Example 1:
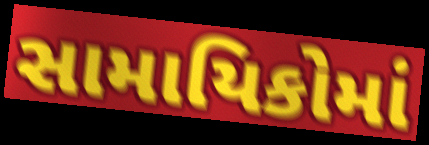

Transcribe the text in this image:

સામાયિકોમાં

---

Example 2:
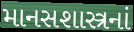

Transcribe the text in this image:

માનસશાસ્ત્રનાં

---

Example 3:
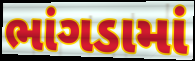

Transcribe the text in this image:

ભાંગડામાં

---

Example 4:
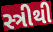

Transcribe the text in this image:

સ્ત્રીથી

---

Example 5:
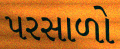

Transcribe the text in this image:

પરસાળો